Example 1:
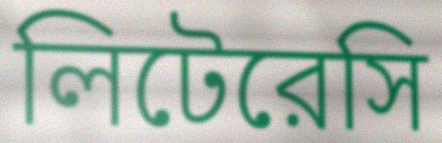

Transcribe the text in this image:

লিটেরেসি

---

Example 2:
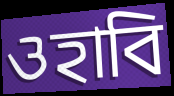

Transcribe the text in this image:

ওহাবি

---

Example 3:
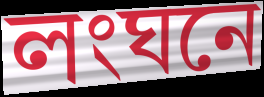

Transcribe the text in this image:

লংঘনে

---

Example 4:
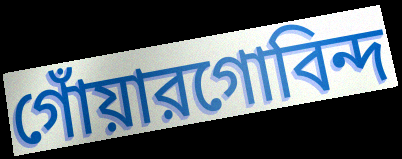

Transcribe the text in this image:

গোঁয়ারগোবিন্দ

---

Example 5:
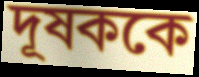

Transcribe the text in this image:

দূষককে